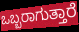
ಒಬ್ಬರಾಗುತ್ತಾರೆ